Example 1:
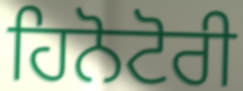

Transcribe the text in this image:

ਹਿਨੋਟੋਰੀ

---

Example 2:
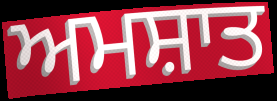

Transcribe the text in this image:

ਅਮਸ਼ਾਤ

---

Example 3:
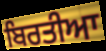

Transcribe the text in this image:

ਬਿਰਤੀਆ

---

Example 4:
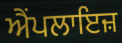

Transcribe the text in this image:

ਐਂਪਲਾਇਜ਼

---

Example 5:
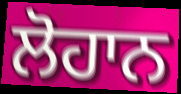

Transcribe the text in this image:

ਲੋਹਾਨ